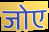
जोए